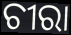
ଚୀରା